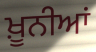
ਖ਼ੂਨੀਆਂ